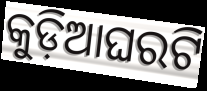
କୁଡ଼ିଆଘରଟି